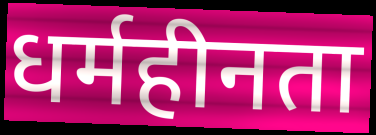
धर्महीनता